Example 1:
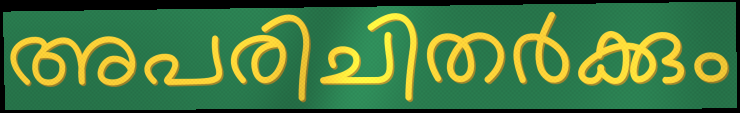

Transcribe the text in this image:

അപരിചിതർക്കും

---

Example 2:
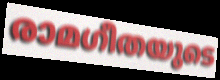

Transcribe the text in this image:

രാമഗീതയുടെ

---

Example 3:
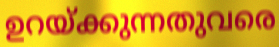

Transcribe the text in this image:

ഉറയ്ക്കുന്നതുവരെ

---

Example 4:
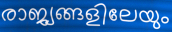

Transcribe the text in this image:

രാജ്യങ്ങളിലേയും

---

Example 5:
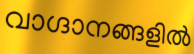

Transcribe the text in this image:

വാഗ്ദാനങ്ങളിൽ